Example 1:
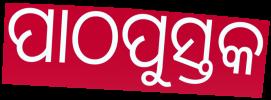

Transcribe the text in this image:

ପାଠପୁସ୍ତକ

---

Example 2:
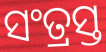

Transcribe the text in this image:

ସଂତ୍ରସ୍ତ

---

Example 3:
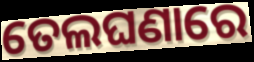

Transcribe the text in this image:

ତେଲଘଣାରେ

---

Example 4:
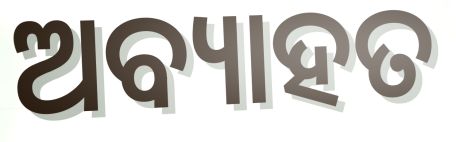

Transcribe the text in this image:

ଅବ୍ୟାହତ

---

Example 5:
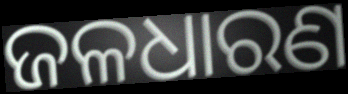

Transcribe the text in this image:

ଜଳଧାରଣ